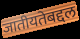
जातीयतेबद्दल